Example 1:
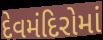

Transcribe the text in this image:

દેવમંદિરોમાં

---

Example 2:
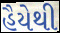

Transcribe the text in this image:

હૈયેથી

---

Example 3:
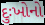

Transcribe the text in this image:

દુઃખોનો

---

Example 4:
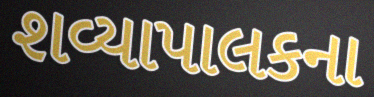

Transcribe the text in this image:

શવ્યાપાલકના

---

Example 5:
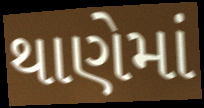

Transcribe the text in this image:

થાણેમાં